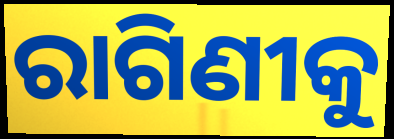
ରାଗିଣୀକୁ